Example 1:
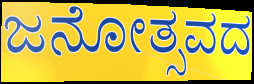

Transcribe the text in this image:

ಜನೋತ್ಸವದ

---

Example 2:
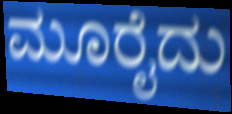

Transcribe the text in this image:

ಮೂರೈದು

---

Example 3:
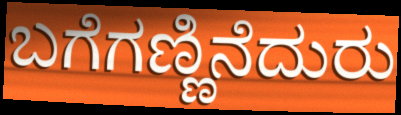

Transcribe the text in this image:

ಬಗೆಗಣ್ಣಿನೆದುರು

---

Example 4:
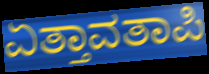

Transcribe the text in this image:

ಏತ್ತಾವತಾಪಿ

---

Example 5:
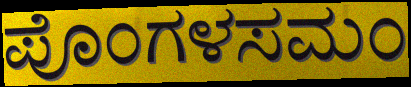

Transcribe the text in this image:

ಪೊಂಗಳಸಮಂ